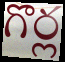
గొర్ల